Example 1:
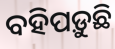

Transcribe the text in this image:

ବହିପଡ଼ୁଛି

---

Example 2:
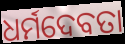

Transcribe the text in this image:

ଧର୍ମଦେବତା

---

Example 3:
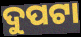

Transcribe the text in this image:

ଦୁପଟା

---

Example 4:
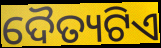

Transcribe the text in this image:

ଦୈତ୍ୟଟିଏ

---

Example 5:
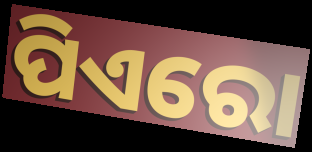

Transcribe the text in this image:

ପିଏରୋ